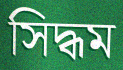
সিদ্ধম